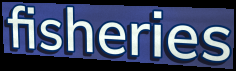
fisheries